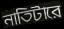
নাতিটারে